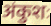
अंकुशः